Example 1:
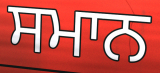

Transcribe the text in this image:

ਸਮਾਨ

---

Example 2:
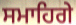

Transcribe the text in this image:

ਸਮਾਹਿਗੇ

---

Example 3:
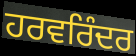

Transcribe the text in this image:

ਹਰਵਰਿੰਦਰ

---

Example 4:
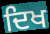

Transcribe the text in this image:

ਦਿਖ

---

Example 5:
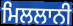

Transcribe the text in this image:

ਮਿਲਲਾਨੀ